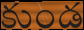
కుండ